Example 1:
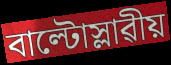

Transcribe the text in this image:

বাল্টোস্লাৱীয়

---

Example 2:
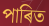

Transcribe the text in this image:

পাৰিত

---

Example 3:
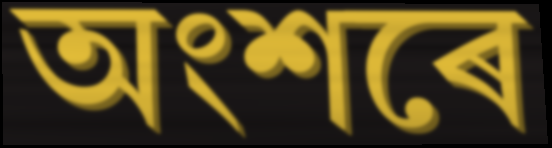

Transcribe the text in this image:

অংশৰে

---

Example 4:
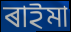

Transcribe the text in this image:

ৰাইমা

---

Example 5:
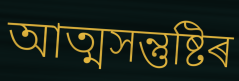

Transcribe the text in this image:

আত্মসন্তুষ্টিৰ